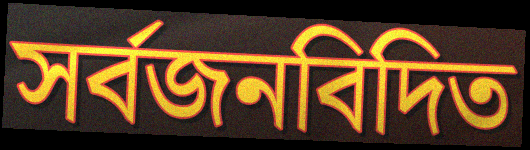
সর্বজনবিদিত